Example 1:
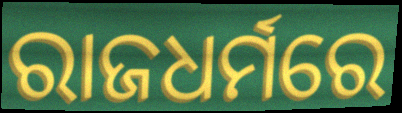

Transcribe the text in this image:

ରାଜଧର୍ମରେ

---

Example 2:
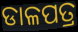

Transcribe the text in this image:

ଡାଳପତ୍ର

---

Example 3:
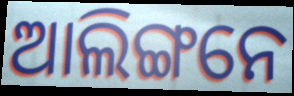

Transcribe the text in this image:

ଆଲିଙ୍ଗନେ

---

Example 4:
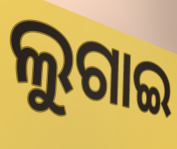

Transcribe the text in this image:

ଲୁଗାଇ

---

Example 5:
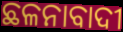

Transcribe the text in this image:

ଛଳନାବାଦୀ